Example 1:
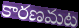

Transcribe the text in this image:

కారణమట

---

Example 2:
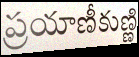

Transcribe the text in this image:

ప్రయాణీకుణ్ణి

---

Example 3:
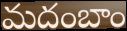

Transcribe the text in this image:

మదంబాం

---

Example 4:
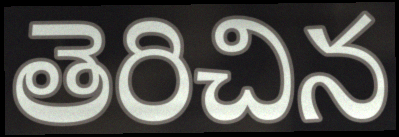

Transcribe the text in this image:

తెరిచిన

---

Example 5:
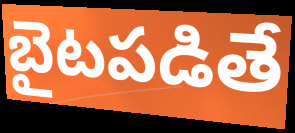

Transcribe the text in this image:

బైటపడితే